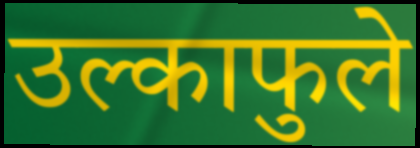
उल्काफुले